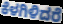
ಕೆಳಗಿಳಿದರೆ